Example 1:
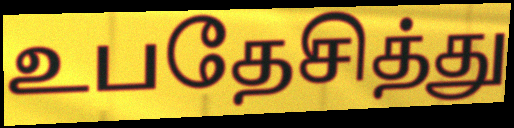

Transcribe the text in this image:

உபதேசித்து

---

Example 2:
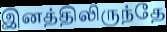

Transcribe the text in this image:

இனத்திலிருந்தே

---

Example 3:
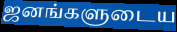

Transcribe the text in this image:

ஜனங்களுடைய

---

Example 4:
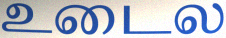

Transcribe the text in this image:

உடைல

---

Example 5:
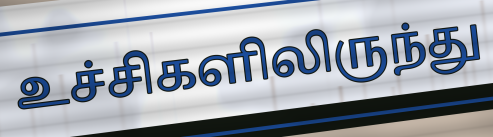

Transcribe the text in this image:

உச்சிகளிலிருந்து